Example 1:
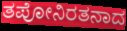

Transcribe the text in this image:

ತಪೋನಿರತನಾದ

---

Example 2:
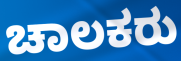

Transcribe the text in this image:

ಚಾಲಕರು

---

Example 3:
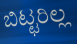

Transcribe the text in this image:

ಬಿಟ್ಟರಿಲ್ಲ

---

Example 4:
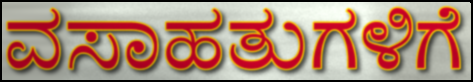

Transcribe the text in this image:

ವಸಾಹತುಗಳಿಗೆ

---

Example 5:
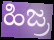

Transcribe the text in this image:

ಹಿಜ್ರ